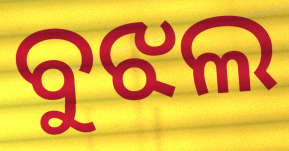
ବୁଝଲ